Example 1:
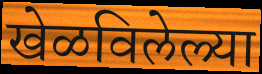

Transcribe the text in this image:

खेळविलेल्या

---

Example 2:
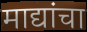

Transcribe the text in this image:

माद्यांचा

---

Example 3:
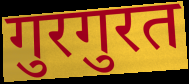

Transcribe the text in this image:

गुरगुरत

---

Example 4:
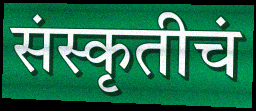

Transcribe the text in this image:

संस्कृतीचं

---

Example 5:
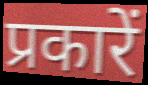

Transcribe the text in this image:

प्रकारें